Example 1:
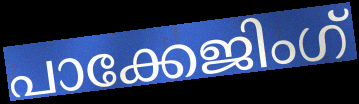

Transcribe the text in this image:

പാക്കേജിംഗ്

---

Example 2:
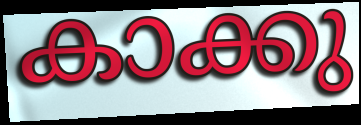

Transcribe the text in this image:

കാക്കു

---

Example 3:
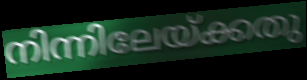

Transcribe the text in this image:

നിന്നിലേയ്ക്കതു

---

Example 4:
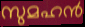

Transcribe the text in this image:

സുമഹൻ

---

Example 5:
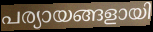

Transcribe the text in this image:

പര്യായങ്ങളായി